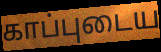
காப்புடைய